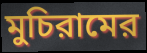
মুচিরামের